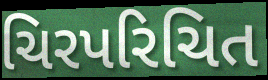
ચિરપરિચિત